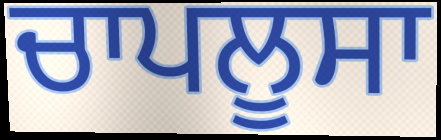
ਚਾਪਲੂਸਾ